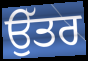
ਉੱਤਰ